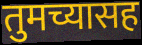
तुमच्यासह